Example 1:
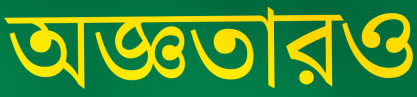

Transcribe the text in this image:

অজ্ঞতারও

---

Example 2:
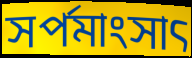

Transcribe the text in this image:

সর্পমাংসাৎ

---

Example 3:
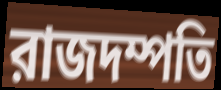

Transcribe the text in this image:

রাজদম্পতি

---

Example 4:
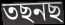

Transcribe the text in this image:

তছনছ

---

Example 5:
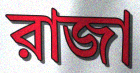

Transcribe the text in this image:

রাজা